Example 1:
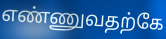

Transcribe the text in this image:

எண்ணுவதற்கே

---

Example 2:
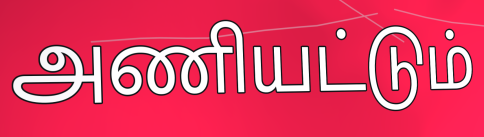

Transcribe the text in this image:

அணியட்டும்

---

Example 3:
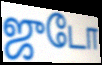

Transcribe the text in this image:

ஜுடோ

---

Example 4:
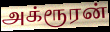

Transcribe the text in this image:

அக்ரூரன்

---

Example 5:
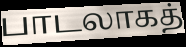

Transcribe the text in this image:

பாடலாகத்